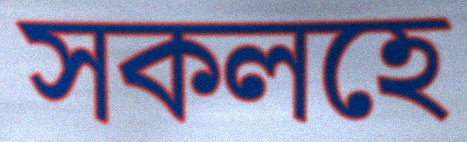
সকলহে